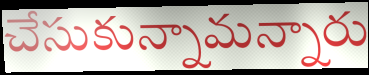
చేసుకున్నామన్నారు